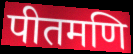
पीतमणि